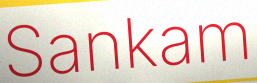
Sankam